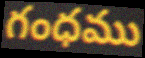
గంధము